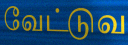
வேட்டுவ